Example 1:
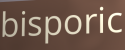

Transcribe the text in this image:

bisporic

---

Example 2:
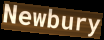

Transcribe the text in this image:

Newbury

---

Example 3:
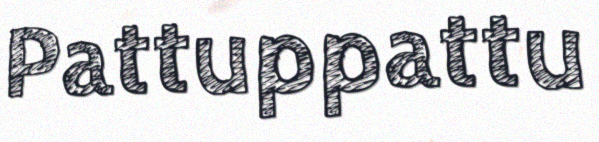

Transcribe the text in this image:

Pattuppattu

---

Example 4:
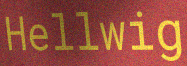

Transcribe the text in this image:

Hellwig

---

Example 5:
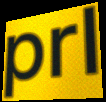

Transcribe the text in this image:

prl